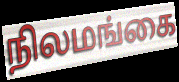
நிலமங்கை